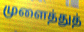
முளைத்துத்